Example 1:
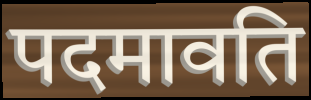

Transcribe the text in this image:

पदमावति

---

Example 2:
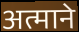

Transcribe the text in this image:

अत्माने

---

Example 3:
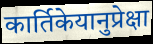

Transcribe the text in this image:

कार्तिकेयानुप्रेक्षा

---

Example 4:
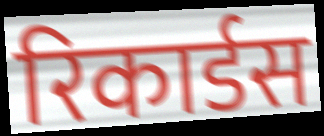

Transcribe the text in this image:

रिकार्डस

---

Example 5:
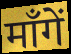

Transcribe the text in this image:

माँगें